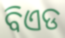
ବିଏଡ